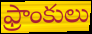
ఫ్రాంకులు